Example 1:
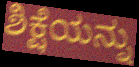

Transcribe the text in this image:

ಶಿಕ್ಷೆಯನ್ನು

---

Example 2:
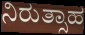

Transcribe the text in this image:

ನಿರುತ್ಸಾಹ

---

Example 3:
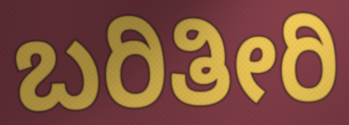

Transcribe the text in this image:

ಬರಿತೀರಿ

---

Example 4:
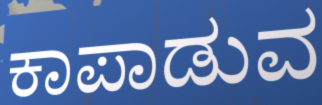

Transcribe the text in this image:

ಕಾಪಾಡುವ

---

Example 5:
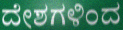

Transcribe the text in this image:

ದೇಶಗಳಿಂದ